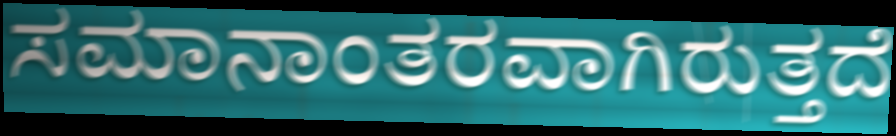
ಸಮಾನಾಂತರವಾಗಿರುತ್ತದೆ